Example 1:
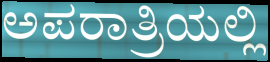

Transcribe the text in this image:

ಅಪರಾತ್ರಿಯಲ್ಲಿ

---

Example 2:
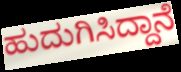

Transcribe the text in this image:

ಹುದುಗಿಸಿದ್ದಾನೆ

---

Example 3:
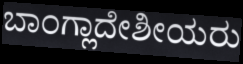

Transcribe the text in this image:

ಬಾಂಗ್ಲಾದೇಶೀಯರು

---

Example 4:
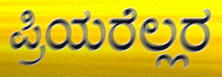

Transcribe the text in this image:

ಪ್ರಿಯರೆಲ್ಲರ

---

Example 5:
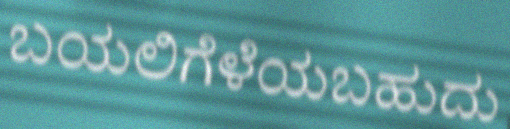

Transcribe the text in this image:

ಬಯಲಿಗೆಳೆಯಬಹುದು